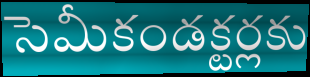
సెమీకండక్టర్లకు